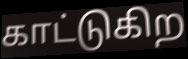
காட்டுகிற